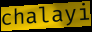
chalayi